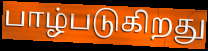
பாழ்படுகிறது